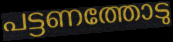
പട്ടണത്തോടു